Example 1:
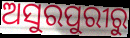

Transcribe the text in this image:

ଅସୁରପୁରୀରୁ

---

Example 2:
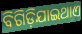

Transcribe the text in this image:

ବିଗିଡ଼ିଯାଇଥାଏ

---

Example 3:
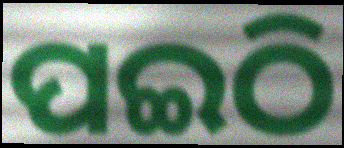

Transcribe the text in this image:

ପଇଠି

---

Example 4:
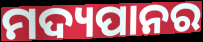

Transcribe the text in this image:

ମଦ୍ୟପାନର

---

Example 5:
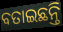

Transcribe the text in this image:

ବତାଇଛନ୍ତି